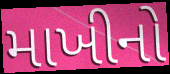
માખીનો